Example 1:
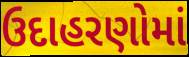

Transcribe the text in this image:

ઉદાહરણોમાં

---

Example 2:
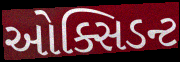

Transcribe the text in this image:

ઓક્સિડન્ટ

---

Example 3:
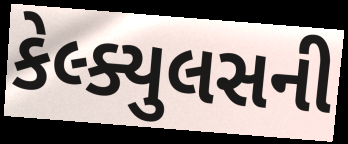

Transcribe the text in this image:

કેલ્ક્યુલસની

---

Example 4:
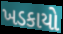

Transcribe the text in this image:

ખડકાયો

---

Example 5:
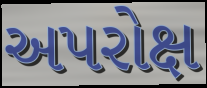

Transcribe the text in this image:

અપરોક્ષ